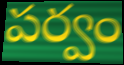
పర్వం